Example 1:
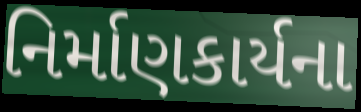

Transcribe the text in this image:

નિર્માણકાર્યના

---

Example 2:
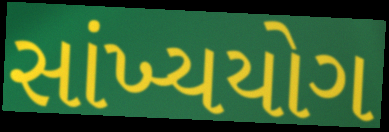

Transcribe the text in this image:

સાંખ્યયોગ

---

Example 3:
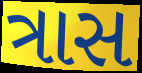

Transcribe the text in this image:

ત્રાસ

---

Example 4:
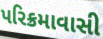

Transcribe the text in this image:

પરિક્રમાવાસી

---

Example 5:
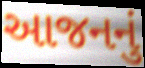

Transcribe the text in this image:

આજનનું